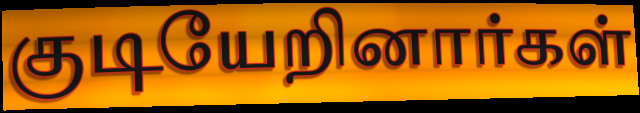
குடியேறினார்கள்